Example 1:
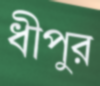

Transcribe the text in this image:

ধীপুর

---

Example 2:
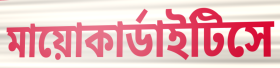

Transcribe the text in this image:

মায়োকার্ডাইটিসে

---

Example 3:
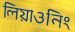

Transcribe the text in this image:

লিয়াওনিং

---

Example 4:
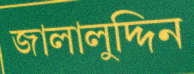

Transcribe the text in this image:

জালালুদ্দিন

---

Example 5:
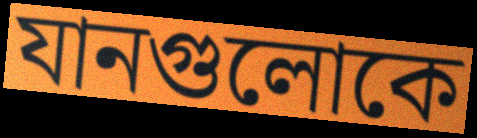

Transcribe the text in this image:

যানগুলোকে